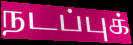
நடப்புக்